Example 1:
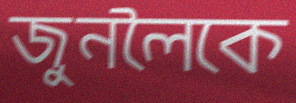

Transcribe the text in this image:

জুনলৈকে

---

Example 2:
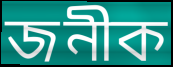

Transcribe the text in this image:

জনীক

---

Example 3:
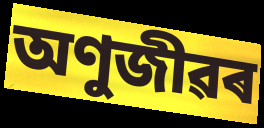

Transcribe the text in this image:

অণুজীৱৰ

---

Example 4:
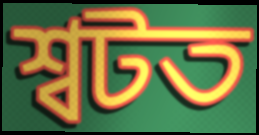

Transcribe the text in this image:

শ্বটত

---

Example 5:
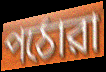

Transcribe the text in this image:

পঠোৱা